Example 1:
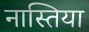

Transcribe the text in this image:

नास्तिया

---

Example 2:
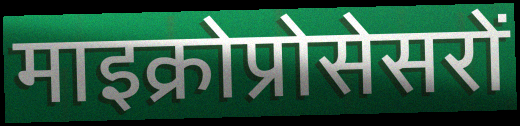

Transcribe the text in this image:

माइक्रोप्रोसेसरों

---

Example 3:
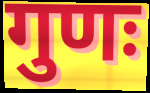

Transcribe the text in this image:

गुणः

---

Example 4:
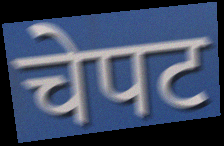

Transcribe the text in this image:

चेपट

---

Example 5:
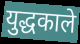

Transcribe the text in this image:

युद्धकाले